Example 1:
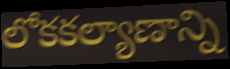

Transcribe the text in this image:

లోకకల్యాణాన్ని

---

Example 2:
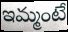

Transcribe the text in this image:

ఇమ్మంటే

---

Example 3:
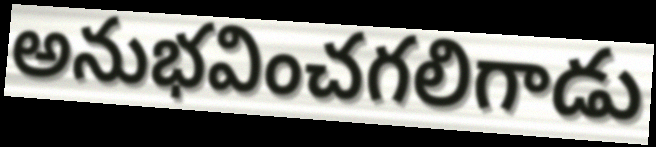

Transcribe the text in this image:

అనుభవించగలిగాడు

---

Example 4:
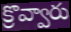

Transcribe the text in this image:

క్రొవ్వారు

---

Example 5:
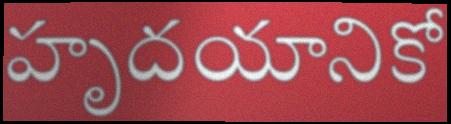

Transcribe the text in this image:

హృదయానికో